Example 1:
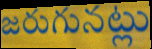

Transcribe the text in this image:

జరుగునట్లు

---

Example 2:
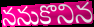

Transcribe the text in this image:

ననుకొనిన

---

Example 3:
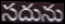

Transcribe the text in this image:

సదును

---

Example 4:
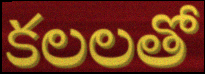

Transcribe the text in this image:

కలలతో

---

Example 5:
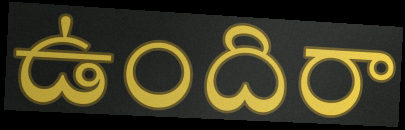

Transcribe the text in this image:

ఉందిరా